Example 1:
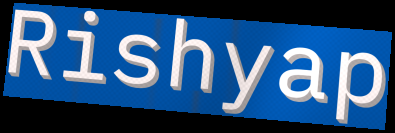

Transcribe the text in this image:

Rishyap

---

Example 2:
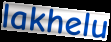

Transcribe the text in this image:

lakhelu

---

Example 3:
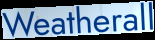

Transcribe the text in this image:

Weatherall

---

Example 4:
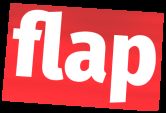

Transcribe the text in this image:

flap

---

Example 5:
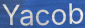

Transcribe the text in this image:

Yacob